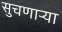
सुचणाऱ्या